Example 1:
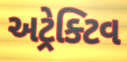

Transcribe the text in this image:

અટ્રેક્ટિવ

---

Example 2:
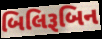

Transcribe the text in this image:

બિલિરૂબિન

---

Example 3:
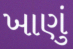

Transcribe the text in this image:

ખાણું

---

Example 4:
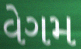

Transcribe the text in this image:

વેગમ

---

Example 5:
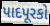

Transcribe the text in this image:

પાદપૂરકો